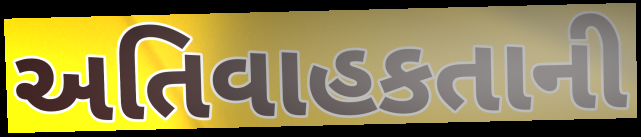
અતિવાહકતાની